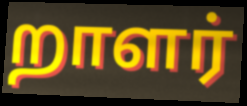
றாளர்